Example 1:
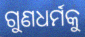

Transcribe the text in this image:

ଗୁଣଧର୍ମକୁ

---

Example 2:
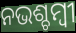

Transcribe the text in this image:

ନଭଶ୍ଚମ୍ବୀ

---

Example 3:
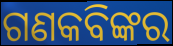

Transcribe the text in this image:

ଗଣକବିଙ୍କର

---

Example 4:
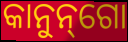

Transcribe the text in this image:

କାନୁନ୍‌ଗୋ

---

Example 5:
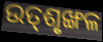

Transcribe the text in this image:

ଉତ୍‌ଶୃଙ୍ଖଳ